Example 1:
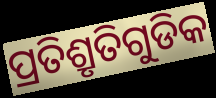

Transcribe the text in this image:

ପ୍ରତିଶ୍ରୃତିଗୁଡିକ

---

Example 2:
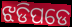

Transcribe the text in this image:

ଝଡିପଡେ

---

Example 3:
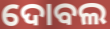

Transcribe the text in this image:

ଦୋବଲ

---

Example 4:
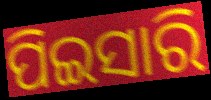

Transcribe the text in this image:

ପିଇସାରି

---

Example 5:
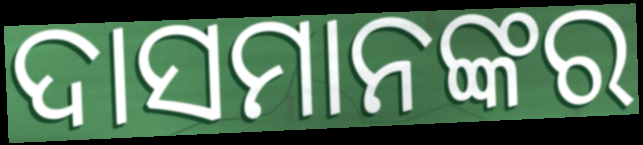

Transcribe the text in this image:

ଦାସମାନଙ୍କର